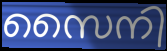
സൈനി